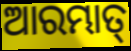
ଆରମ୍ଭାତ୍